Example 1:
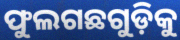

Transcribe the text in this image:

ଫୁଲଗଛଗୁଡ଼ିକୁ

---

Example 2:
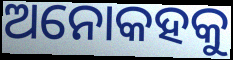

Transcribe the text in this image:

ଅନୋକହକୁ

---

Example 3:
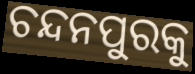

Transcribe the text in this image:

ଚନ୍ଦନପୁରକୁ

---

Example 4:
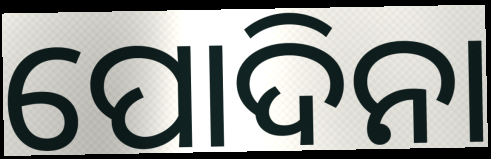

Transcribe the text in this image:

ପୋଦିନା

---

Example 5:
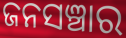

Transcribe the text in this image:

ଜନସଞ୍ଚାର